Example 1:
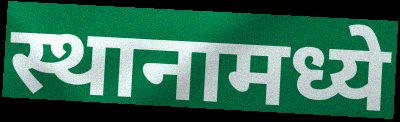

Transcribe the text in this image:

स्थानामध्ये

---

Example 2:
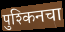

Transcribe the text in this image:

पुश्किनचा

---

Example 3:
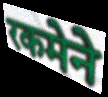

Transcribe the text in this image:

रकमेने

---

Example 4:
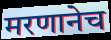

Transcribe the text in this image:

मरणानेच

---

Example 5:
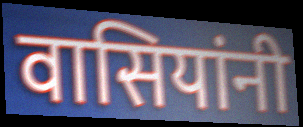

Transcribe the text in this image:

वासियांनी